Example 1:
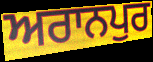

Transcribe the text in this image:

ਅਰਾਨਪੁਰ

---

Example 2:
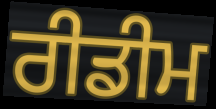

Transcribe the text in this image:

ਰੀਡੀਮ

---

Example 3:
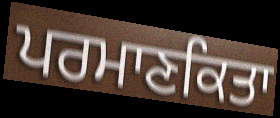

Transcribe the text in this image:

ਪਰਮਾਣਕਿਤਾ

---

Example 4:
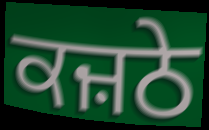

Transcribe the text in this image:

ਕਜ਼ਠੇ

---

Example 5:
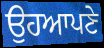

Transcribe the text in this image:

ਉਹਆਪਣੇ